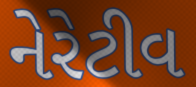
નેરેટીવ